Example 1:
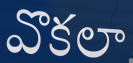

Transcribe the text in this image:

వొకలా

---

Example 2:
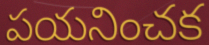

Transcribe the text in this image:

పయనించక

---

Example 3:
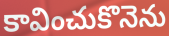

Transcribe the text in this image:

కావించుకొనెను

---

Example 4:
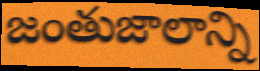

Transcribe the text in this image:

జంతుజాలాన్ని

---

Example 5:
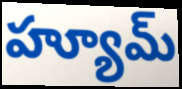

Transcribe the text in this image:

హ్యూమ్